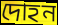
দোহন